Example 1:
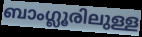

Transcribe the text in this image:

ബാംഗ്ലൂരിലുള്ള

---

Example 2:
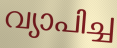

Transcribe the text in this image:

വ്യാപിച്ച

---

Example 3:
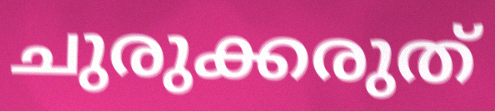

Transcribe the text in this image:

ചുരുക്കരുത്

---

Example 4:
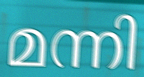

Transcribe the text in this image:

മന്നി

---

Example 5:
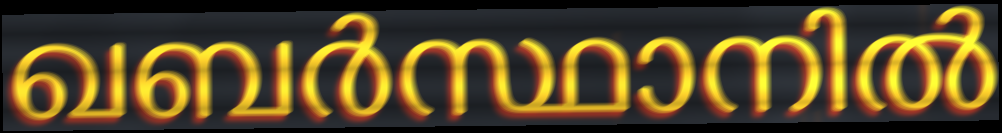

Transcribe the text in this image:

ഖബർസ്ഥാനിൽ